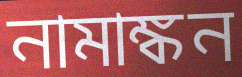
নামাঙ্কন